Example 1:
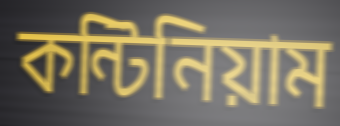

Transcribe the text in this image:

কন্টিনিয়াম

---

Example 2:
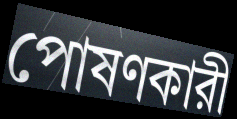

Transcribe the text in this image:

পোষণকারী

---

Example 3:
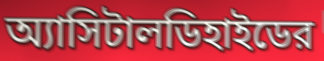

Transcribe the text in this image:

অ্যাসিটালডিহাইডের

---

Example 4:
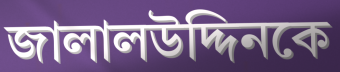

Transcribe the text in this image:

জালালউদ্দিনকে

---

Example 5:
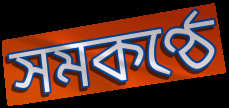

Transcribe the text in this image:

সমকণ্ঠে